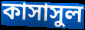
কাসাসুল